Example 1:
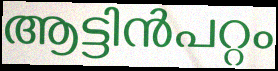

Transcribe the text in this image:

ആട്ടിൻപറ്റം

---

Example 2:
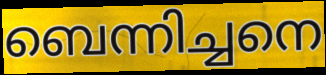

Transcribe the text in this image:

ബെന്നിച്ചനെ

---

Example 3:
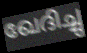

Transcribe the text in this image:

ഖേദിച്ചു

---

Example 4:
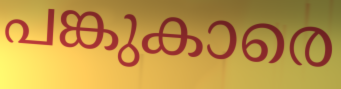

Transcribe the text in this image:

പങ്കുകാരെ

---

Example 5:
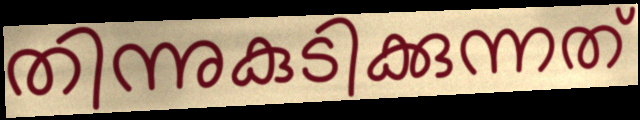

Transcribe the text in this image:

തിന്നുകുടിക്കുന്നത്